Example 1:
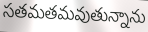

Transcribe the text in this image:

సతమతమవుతున్నాను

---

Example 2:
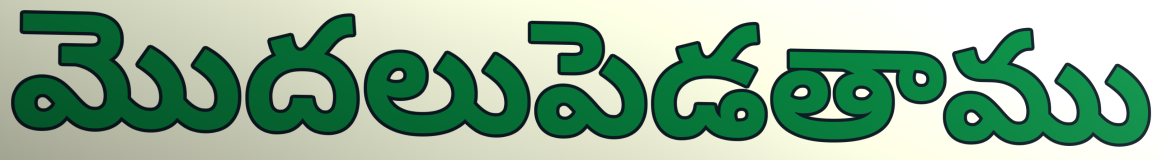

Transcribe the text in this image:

మొదలుపెడతాము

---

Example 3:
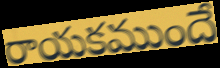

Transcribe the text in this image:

రాయకముందే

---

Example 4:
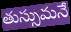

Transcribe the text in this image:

తుస్సుమనే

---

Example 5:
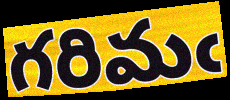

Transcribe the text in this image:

గరిమఁ